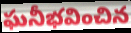
ఘనీభవించిన